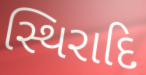
સ્થિરાદિ